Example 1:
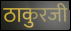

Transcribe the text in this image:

ठाकुरजी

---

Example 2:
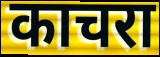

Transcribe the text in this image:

काचरा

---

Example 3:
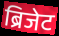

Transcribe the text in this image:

ब्रिजेट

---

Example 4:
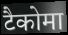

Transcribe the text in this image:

टैकोमा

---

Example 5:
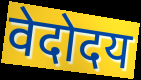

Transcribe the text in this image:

वेदोदय